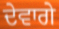
ਦੇਵਾਗੇ